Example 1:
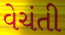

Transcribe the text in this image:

વેચંતી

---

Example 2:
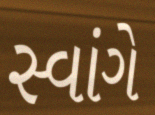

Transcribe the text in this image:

સ્વાંગે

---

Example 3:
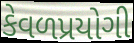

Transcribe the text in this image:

કેવળપ્રયોગી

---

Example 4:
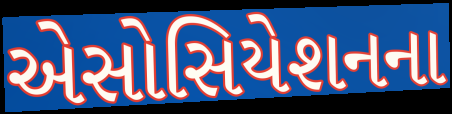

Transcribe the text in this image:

એસોસિયેશનના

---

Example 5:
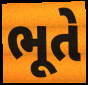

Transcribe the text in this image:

ભૂતે